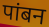
पांबन